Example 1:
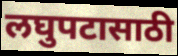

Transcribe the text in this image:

लघुपटासाठी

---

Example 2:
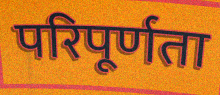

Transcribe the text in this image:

परिपूर्णता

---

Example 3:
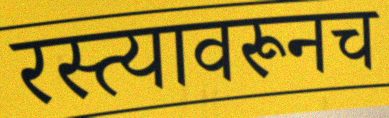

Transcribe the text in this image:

रस्त्यावरूनच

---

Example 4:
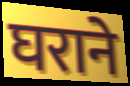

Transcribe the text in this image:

घराने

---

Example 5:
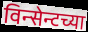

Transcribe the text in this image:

विन्सेन्टच्या